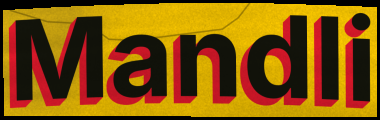
Mandli